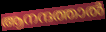
ആനന്ദത്താൽ